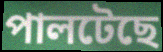
পালটেছে